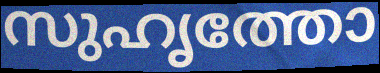
സുഹൃത്തോ